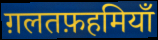
ग़लतफ़हमियाँ